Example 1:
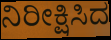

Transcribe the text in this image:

ನಿರೀಕ್ಷಿಸಿದ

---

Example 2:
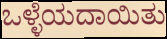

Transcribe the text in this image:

ಒಳ್ಳೆಯದಾಯಿತು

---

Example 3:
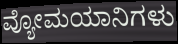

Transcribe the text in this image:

ವ್ಯೋಮಯಾನಿಗಳು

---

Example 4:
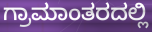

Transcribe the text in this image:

ಗ್ರಾಮಾಂತರದಲ್ಲಿ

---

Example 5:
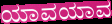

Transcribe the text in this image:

ಯಾವಯಾವ